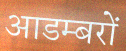
आडम्बरों